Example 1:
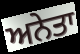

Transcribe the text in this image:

ਅਨੇਤਾ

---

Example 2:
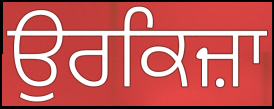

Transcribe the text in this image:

ਉਰਕਿਜ਼ਾ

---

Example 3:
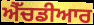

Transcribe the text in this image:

ਐੱਚਡੀਆਰ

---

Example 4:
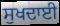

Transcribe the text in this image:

ਸੁਖਦਾਈ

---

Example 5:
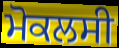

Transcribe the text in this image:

ਮੋਕਲਸੀ